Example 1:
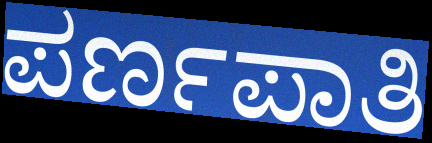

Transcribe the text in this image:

ಪರ್ಣಪಾತಿ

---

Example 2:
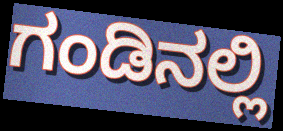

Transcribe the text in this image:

ಗಂಡಿನಲ್ಲಿ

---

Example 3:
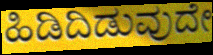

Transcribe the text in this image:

ಹಿಡಿದಿಡುವುದೇ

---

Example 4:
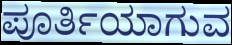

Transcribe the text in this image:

ಪೂರ್ತಿಯಾಗುವ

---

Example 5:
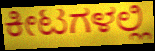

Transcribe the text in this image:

ಕೀಟಗಳಲ್ಲಿ